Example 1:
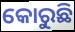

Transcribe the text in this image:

କୋରୁଛି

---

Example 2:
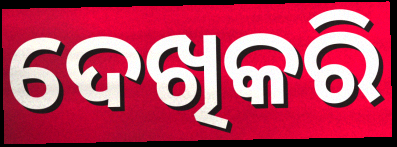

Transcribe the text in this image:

ଦେଖିକରି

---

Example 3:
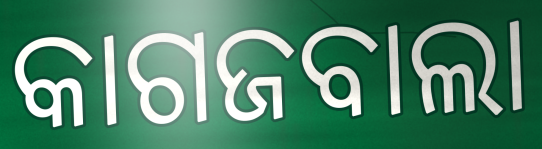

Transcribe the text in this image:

କାଗଜବାଲା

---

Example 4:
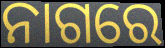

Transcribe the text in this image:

ନାଗରେ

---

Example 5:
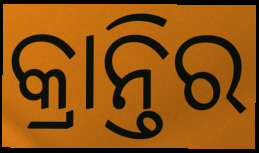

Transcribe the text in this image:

କ୍ରାନ୍ତିର